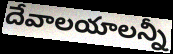
దేవాలయాలన్నీ